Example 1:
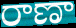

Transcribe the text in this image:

రాణా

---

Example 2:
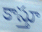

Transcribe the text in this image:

కాస్తూ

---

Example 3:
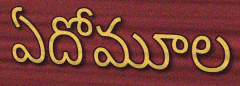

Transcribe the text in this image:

ఏదోమూల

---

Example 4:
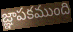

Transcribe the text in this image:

జ్ఞాపకముంది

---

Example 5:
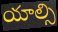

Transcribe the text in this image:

యాల్సి